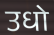
उधो